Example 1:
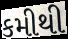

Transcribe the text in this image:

કમીથી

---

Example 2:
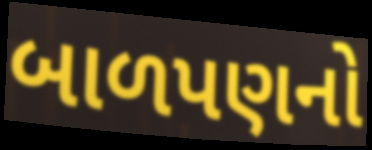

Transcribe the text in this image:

બાળપણનો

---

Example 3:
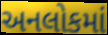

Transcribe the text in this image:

અનલોકમાં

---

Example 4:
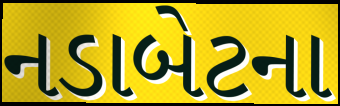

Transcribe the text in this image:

નડાબેટના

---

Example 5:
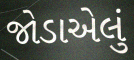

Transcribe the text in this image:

જોડાએલું